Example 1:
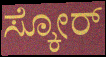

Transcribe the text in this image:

ಸ್ಕೋರ್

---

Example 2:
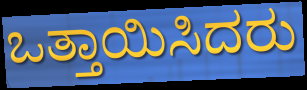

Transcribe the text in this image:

ಒತ್ತಾಯಿಸಿದರು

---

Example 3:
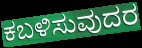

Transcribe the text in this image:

ಕಬಳಿಸುವುದರ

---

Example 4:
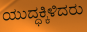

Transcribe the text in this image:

ಯುದ್ಧಕ್ಕಿಳಿದರು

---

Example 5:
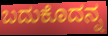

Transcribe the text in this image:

ಬದುಕೊದನ್ನ